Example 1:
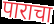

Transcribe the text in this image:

पाराचा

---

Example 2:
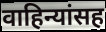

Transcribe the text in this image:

वाहिन्यांसह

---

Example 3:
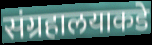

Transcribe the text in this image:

संग्रहालयाकडे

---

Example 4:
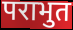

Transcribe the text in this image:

पराभुत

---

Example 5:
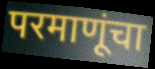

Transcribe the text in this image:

परमाणूंचा